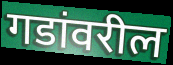
गडांवरील